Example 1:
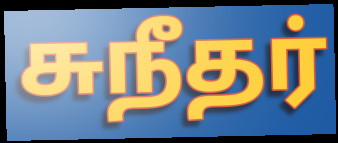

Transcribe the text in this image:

சுநீதர்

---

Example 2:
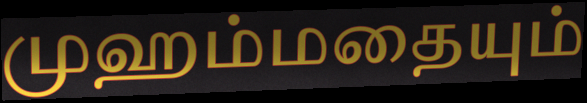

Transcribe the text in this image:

முஹம்மதையும்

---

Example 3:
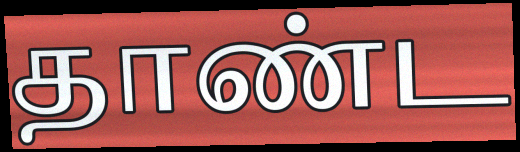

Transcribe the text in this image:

தாண்ட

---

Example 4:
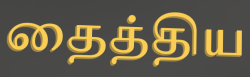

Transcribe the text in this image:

தைத்திய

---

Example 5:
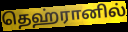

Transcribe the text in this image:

தெஹ்ரானில்